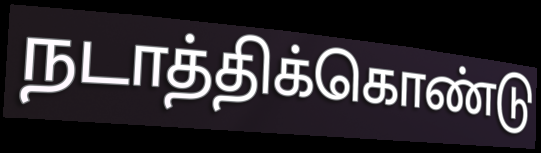
நடாத்திக்கொண்டு